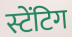
स्टेंटिग